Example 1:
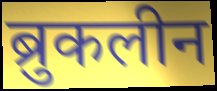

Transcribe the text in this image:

ब्रुकलीन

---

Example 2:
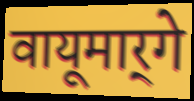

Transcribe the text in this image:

वायूमार्गे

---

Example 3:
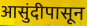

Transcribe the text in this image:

आसुंदीपासून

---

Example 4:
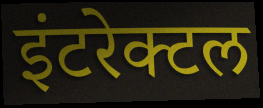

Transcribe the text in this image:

इंटरेक्टल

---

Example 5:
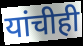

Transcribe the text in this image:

यांचीही